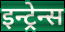
इन्ट्रेन्स